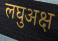
लघुअक्ष